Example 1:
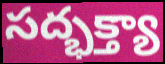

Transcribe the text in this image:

సద్భక్త్యా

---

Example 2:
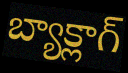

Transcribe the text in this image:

బ్యాక్లాగ్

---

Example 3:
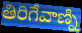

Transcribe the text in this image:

తిరిగేవాణ్ని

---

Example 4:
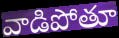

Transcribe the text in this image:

వాడిపోతూ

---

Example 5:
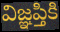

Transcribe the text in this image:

విజ్ఞప్తికి